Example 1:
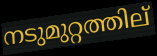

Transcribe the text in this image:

നടുമുറ്റത്തില്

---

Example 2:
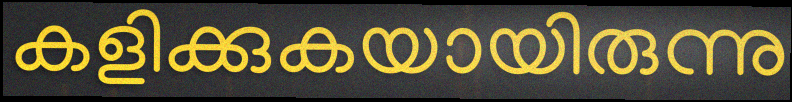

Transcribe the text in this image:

കളിക്കുകയായിരുന്നു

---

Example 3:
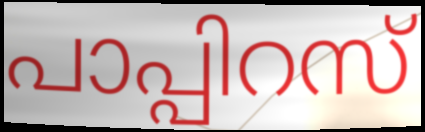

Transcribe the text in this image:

പാപ്പിറസ്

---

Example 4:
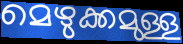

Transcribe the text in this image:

മെഴുക്കമുള്ള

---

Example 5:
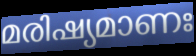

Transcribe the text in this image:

മരിഷ്യമാണഃ